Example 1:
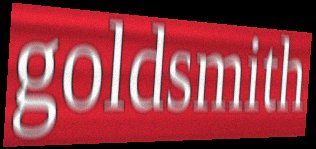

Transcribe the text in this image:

goldsmith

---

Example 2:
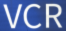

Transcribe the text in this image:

VCR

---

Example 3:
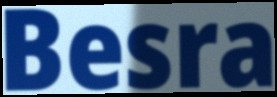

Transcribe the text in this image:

Besra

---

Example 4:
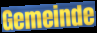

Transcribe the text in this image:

Gemeinde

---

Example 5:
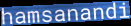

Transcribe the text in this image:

hamsanandi